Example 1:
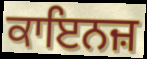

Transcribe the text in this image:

ਕਾਇਨਜ਼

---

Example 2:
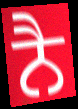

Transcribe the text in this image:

ਨੈ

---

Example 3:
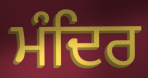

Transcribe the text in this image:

ਮੰਦਿਰ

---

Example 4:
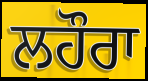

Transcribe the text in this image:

ਲਹੌਰਾ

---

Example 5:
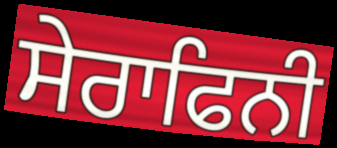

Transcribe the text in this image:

ਸੇਰਾਫਿਨੀ